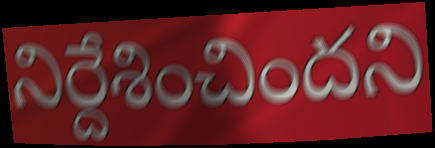
నిర్దేశించిందని